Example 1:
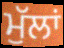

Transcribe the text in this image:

ਮੁੱਲਾਂ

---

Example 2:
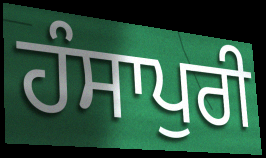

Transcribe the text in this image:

ਹੰਸਾਪੁਰੀ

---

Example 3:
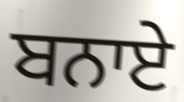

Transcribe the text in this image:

ਬਨਾਏ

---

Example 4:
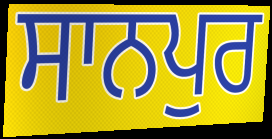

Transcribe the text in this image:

ਸਾਨਪੁਰ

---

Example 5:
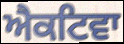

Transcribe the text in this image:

ਐਕਟਿਵਾ